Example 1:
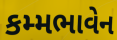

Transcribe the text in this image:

કમ્મભાવેન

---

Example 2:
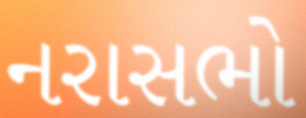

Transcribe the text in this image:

નરાસભો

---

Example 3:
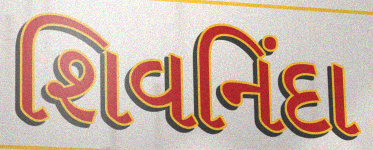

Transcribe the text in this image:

શિવનિંદા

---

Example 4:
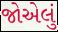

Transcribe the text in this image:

જોએલું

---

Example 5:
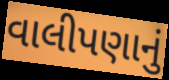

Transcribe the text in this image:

વાલીપણાનું